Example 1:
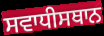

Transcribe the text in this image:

ਸਵਾਧੀਸਥਾਨ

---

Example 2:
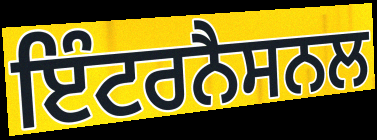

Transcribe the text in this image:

ਇੰਟਰਨੈਸਨਲ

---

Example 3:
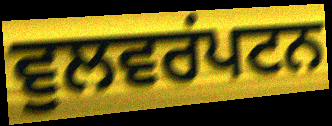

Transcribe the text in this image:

ਵੁਲਵਰਂਪਟਨ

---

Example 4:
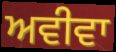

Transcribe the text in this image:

ਅਵੀਵਾ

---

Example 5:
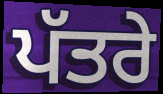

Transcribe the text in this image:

ਪੱਤਰੇ